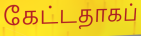
கேட்டதாகப்